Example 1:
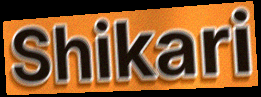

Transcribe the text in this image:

Shikari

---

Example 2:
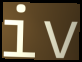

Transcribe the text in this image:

iv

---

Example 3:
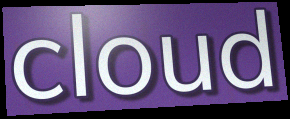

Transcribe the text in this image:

cloud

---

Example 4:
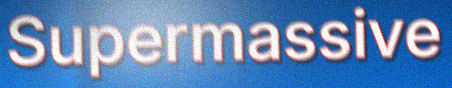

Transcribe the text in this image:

Supermassive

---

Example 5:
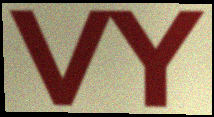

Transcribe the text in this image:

VY